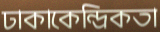
ঢাকাকেন্দ্রিকতা